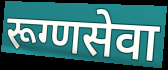
रूग्णसेवा